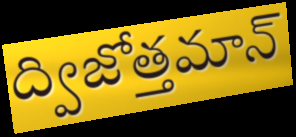
ద్విజోత్తమాన్